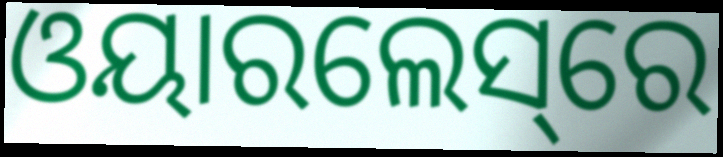
ଓୟାରଲେସ୍‌ରେ